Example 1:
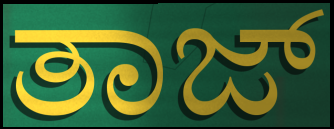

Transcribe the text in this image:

ತಾಜ್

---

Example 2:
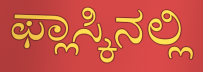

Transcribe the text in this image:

ಫ್ಲಾಸ್ಕಿನಲ್ಲಿ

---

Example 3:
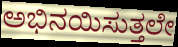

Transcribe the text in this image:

ಅಭಿನಯಿಸುತ್ತಲೇ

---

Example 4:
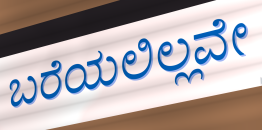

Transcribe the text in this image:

ಬರೆಯಲಿಲ್ಲವೇ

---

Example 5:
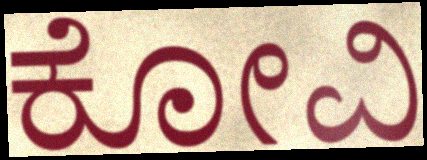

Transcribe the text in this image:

ಕೋವಿ